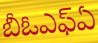
బీఓఎఫ్ఏ